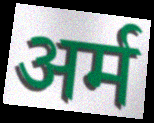
अर्म